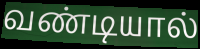
வண்டியால்